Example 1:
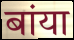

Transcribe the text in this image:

बांया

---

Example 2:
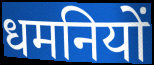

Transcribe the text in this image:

धमनियों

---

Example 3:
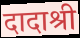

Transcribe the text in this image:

दादाश्री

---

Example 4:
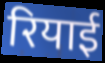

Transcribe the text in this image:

रियाई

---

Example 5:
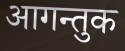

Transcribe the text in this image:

आगन्तुक